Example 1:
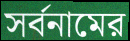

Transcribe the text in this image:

সর্বনামের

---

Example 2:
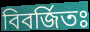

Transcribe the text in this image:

বিবর্জিতঃ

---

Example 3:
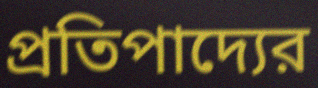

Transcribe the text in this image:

প্রতিপাদ্যের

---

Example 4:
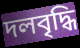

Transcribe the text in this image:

দলবৃদ্ধি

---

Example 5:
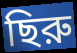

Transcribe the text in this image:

ছিরু